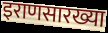
इराणसारख्या